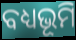
ବଧ୍ୟଭୂମି